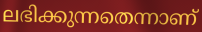
ലഭിക്കുന്നതെന്നാണ്